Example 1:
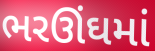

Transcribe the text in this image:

ભરઊંઘમાં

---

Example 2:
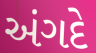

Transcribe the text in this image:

અંગદે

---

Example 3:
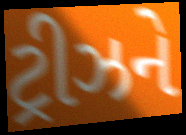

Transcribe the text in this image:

ટ્રીઝને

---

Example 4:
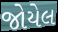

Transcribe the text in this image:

જોયેલ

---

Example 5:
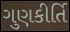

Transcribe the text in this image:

ગુણકીર્તિ